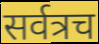
सर्वत्रच